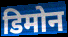
डिमोन